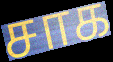
சாக